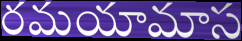
రమయామాస